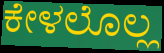
ಕೇಳಲೊಲ್ಲ